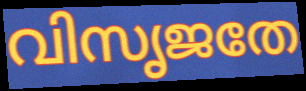
വിസൃജതേ